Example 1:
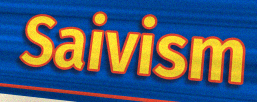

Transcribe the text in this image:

Saivism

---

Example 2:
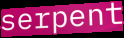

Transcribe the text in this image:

serpent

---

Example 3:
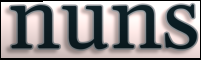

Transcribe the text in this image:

nuns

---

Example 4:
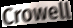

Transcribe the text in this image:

Crowell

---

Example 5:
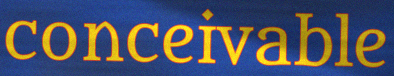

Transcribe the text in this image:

conceivable